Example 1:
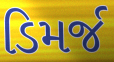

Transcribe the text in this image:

ડિમર્જ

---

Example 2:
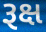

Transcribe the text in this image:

રૂક્ષ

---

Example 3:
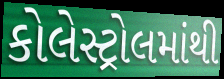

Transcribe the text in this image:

કોલેસ્ટ્રોલમાંથી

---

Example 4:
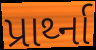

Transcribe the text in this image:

પ્રાર્થ્ના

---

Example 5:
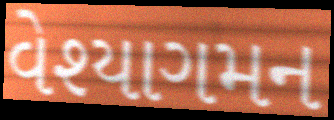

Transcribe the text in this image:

વેશ્યાગમન